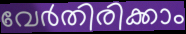
വേർതിരിക്കാം